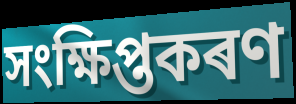
সংক্ষিপ্তকৰণ